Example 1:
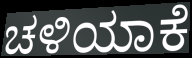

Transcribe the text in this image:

ಚಳಿಯಾಕೆ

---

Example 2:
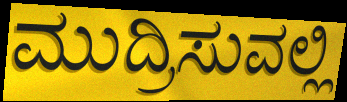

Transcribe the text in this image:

ಮುದ್ರಿಸುವಲ್ಲಿ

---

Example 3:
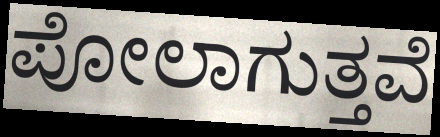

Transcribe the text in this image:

ಪೋಲಾಗುತ್ತವೆ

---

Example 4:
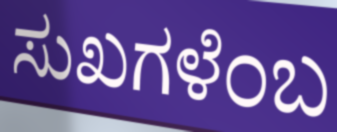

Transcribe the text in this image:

ಸುಖಗಳೆಂಬ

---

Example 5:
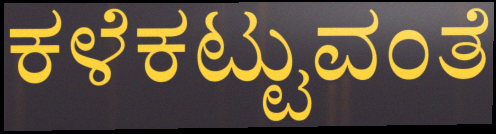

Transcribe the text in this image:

ಕಳೆಕಟ್ಟುವಂತೆ